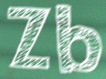
Zb